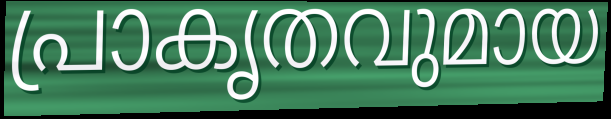
പ്രാകൃതവുമായ